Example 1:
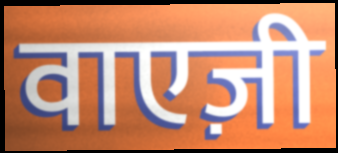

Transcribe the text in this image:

वाएज़ी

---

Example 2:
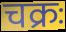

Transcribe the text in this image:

चक्रः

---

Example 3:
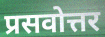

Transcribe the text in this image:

प्रसवोत्तर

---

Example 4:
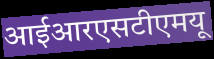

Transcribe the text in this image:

आईआरएसटीएमयू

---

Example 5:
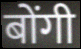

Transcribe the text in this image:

बोंगी